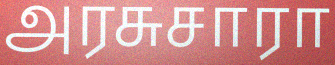
அரசுசாரா